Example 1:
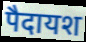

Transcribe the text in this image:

पैदायश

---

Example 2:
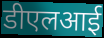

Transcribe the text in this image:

डीएलआई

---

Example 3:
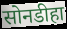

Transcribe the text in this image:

सोनडीहा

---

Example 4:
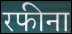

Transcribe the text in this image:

रफीना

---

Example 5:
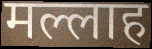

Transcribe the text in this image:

मल्‍लाह